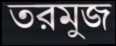
তরমুজ